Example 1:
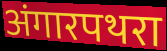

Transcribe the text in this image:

अंगारपथरा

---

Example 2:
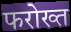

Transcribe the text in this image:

फरोख्‍त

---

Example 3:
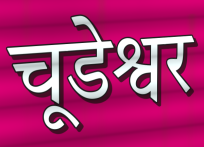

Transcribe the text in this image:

चूडेश्वर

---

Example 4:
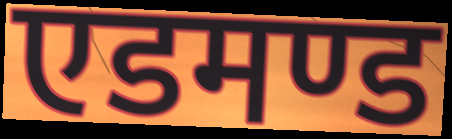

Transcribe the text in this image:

एडमण्ड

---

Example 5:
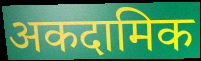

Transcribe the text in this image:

अकदामिक